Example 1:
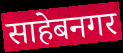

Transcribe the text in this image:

साहेबनगर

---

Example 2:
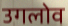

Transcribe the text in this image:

उगलोव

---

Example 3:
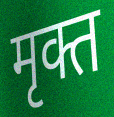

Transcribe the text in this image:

मृक्त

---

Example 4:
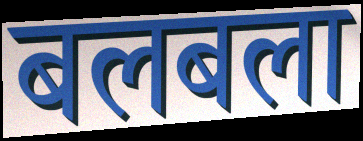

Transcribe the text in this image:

बलबला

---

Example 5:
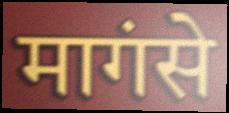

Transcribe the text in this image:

मागंसे